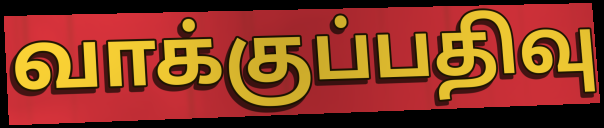
வாக்குப்பதிவு